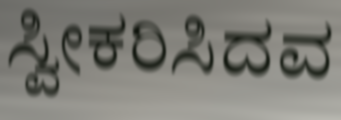
ಸ್ವೀಕರಿಸಿದವ